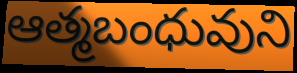
ఆత్మబంధువుని